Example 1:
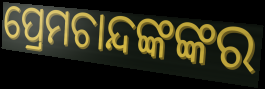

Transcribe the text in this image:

ପ୍ରେମଚାନ୍ଦଙ୍କଙ୍କର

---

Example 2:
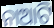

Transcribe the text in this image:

ନାଆଟି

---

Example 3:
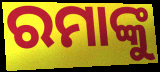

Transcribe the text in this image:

ରମାଙ୍କୁ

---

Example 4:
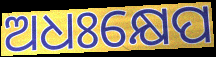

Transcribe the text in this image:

ଅଧଃକ୍ଷେପ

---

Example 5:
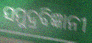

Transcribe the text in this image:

ସମୁଦ୍ରବିଜ୍ଞାନୀ